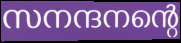
സനന്ദനന്റെ